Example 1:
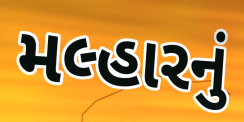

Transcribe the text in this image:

મલ્હારનું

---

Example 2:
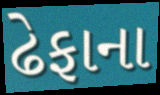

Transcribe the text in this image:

ઢેફાના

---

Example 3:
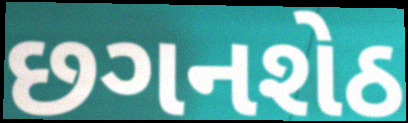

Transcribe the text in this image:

છગનશેઠ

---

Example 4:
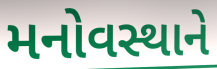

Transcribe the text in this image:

મનોવસ્થાને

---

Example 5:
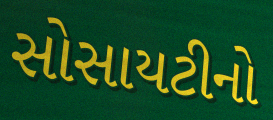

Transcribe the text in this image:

સોસાયટીનો